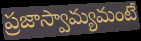
ప్రజాస్వామ్యమంటే